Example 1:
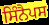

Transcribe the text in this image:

ਸਿੰਨੈਪਸ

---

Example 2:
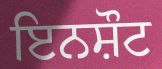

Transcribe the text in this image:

ਇਨਸ਼ੌਟ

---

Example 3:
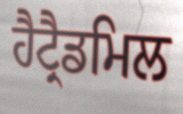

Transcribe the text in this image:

ਹੈਟ੍ਰੈਡਮਿਲ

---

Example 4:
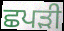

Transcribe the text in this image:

ਛਪੜੀ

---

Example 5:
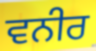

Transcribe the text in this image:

ਵਨੀਰ